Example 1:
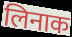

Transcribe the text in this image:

लिनाक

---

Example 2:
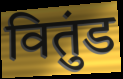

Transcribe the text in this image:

वितुंड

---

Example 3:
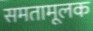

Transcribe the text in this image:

समतामूलक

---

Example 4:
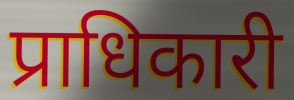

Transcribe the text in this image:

प्राधिकारी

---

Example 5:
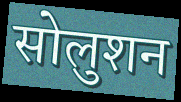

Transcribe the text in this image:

सोलुशन